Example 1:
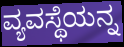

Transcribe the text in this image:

ವ್ಯವಸ್ಥೆಯನ್ನ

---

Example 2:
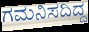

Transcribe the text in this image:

ಗಮನಿಸದಿದ್ದ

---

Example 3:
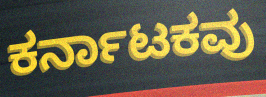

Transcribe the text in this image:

ಕರ್ನಾಟಕವು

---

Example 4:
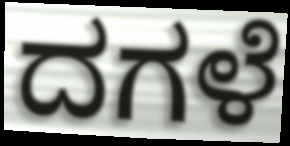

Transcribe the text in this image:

ದಗಳೆ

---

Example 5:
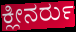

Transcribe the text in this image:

ಕ್ಲೀನರ್ರು